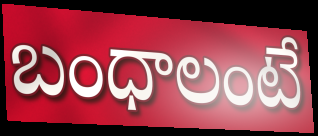
బంధాలంటే